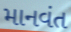
માનવંત